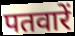
पतवारें